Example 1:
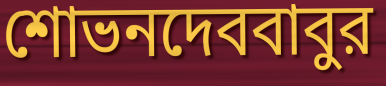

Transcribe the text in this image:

শোভনদেববাবুর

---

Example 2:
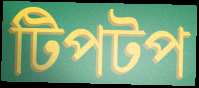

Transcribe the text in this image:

টিপটপ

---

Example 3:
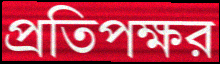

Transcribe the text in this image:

প্রতিপক্ষর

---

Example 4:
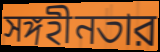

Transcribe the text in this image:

সঙ্গহীনতার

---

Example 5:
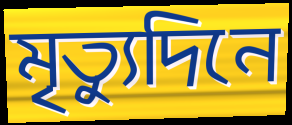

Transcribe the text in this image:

মৃত্যুদিনে